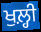
ਖੁਲ਼੍ਹੀ